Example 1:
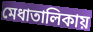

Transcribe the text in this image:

মেধাতালিকায়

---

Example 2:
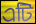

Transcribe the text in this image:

এটি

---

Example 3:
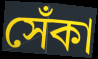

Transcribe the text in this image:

সেঁকা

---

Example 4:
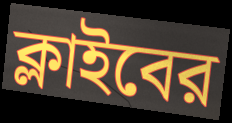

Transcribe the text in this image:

ক্লাইবের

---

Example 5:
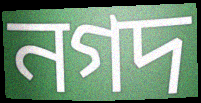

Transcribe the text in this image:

নগদ